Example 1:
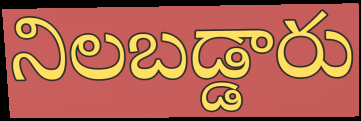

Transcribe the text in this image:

నిలబడ్డారు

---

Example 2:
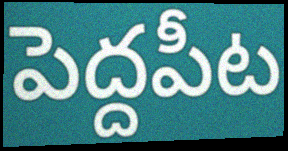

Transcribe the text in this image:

పెద్దపీట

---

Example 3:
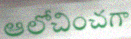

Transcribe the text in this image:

ఆలోచించగా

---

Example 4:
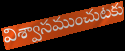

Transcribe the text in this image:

విశ్వాసముంచుటకు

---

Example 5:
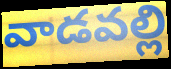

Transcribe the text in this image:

వాడవల్లి